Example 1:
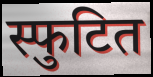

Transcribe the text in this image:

स्फुटित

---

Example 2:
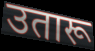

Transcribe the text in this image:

उतारू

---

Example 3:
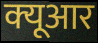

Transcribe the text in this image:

क्‍यूआर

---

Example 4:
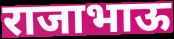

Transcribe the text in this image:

राजाभाऊ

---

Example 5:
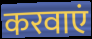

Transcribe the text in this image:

करवाएं